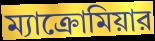
ম্যাক্রোমিয়ার